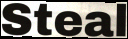
Steal